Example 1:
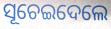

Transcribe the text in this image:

ସୂଚେଇଦେଲେ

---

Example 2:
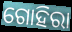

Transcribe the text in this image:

ଗୋହିରା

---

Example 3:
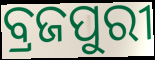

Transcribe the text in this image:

ବ୍ରଜପୁରୀ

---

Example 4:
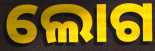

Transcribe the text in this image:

ଲୋଗ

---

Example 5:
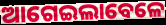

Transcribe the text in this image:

ଆଗେଇଲାବେଳେ